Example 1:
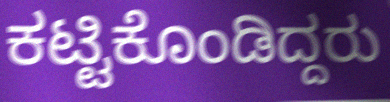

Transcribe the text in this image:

ಕಟ್ಟಿಕೊಂಡಿದ್ದರು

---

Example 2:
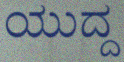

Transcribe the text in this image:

ಯುದ್ದ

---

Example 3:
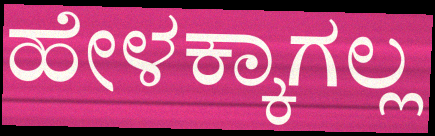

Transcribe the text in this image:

ಹೇಳಕ್ಕಾಗಲ್ಲ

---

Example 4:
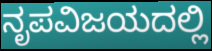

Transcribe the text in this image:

ನೃಪವಿಜಯದಲ್ಲಿ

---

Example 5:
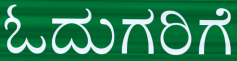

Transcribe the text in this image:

ಓದುಗರಿಗೆ